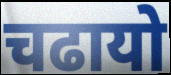
चढायो